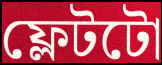
ফ্লেটটো